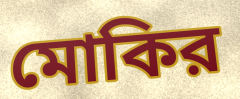
মোকির